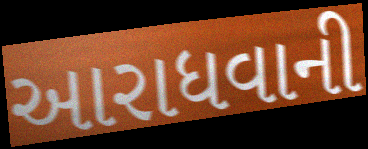
આરાધવાની